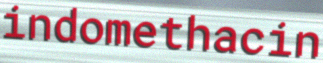
indomethacin